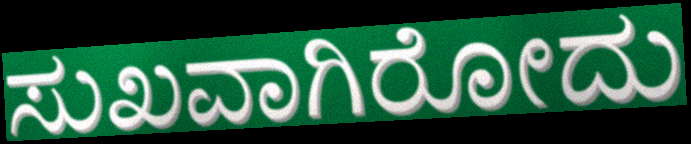
ಸುಖವಾಗಿರೋದು